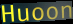
Huoon